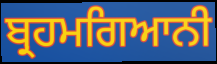
ਬ੍ਰਹਮਗਿਆਨੀ